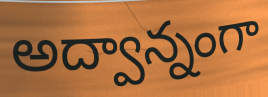
అద్వాన్నంగా